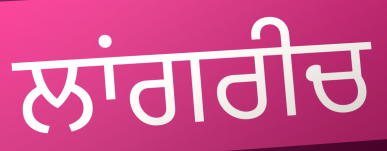
ਲਾਂਗਰੀਚ